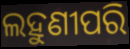
ଲହୁଣୀପରି